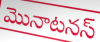
మొనాటనస్